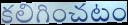
కలిగించటం